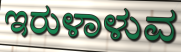
ಇರುಳಾಳುವ